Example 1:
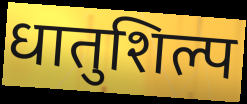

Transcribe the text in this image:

धातुशिल्प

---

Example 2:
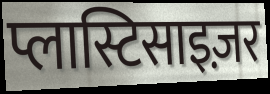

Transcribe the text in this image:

प्लास्टिसाइज़र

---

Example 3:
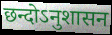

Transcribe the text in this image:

छन्दोऽनुशासन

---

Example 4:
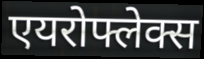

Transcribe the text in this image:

एयरोफ्लेक्स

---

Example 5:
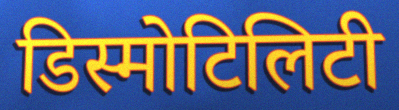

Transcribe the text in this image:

डिस्मोटिलिटी